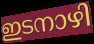
ഇടനാഴി